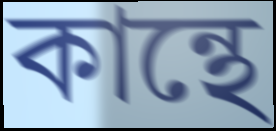
কান্থে